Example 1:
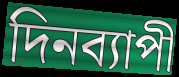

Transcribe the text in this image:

দিনব্যাপী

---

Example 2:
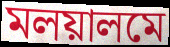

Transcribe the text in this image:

মলয়ালমে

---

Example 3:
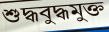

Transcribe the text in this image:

শুদ্ধবুদ্ধমুক্ত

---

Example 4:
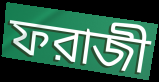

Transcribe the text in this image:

ফরাজী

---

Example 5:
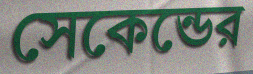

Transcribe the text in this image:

সেকেন্ডের